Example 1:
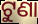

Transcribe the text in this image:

ଟୁଣା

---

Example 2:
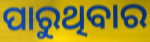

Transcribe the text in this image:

ପାରୁଥିବାର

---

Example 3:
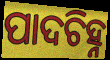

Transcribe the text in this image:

ପାଦଚିହ୍ନ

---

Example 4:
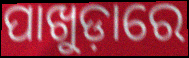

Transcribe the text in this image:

ପାଖୁଡ଼ାରେ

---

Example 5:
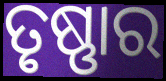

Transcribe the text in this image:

ତୃଷ୍ଣାର